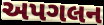
અપગલન